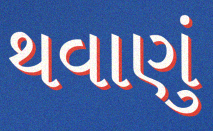
થવાણું